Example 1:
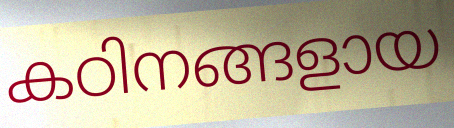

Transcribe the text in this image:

കഠിനങ്ങളായ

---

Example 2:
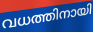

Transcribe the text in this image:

വധത്തിനായി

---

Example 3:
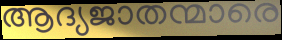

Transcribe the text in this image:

ആദ്യജാതന്മാരെ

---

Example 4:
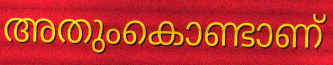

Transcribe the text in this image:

അതുംകൊണ്ടാണ്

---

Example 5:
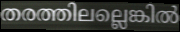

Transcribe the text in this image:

തരത്തിലല്ലെങ്കിൽ